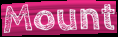
Mount